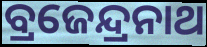
ବ୍ରଜେନ୍ଦ୍ରନାଥ